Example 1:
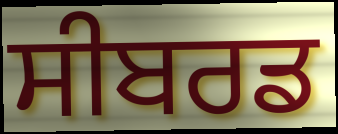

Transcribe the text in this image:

ਸੀਬਰਡ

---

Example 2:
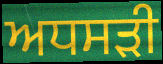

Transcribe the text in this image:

ਅਧਸੜੀ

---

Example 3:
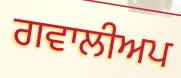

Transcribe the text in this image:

ਗਵਾਲੀਅਪ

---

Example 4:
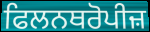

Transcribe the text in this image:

ਫਿਲਨਥਰੋਪੀਜ਼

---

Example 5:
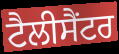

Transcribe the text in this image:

ਟੈਲੀਸੈਂਟਰ